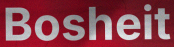
Bosheit